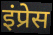
इंप्रेस